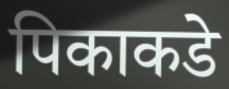
पिकाकडे